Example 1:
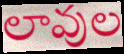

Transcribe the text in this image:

లావుల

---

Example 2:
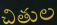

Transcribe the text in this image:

చితుల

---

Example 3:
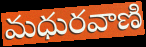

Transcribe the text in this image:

మధురవాణి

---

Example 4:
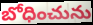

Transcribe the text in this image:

బోధించును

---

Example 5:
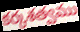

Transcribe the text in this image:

కర్కశత్వము